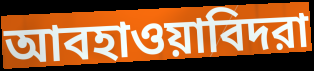
আবহাওয়াবিদরা